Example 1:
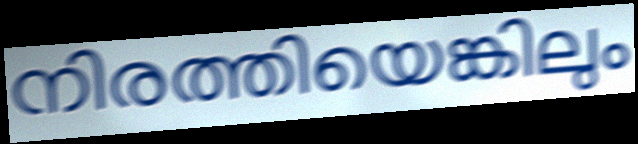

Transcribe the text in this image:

നിരത്തിയെങ്കിലും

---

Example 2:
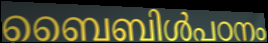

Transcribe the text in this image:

ബൈബിൾപഠനം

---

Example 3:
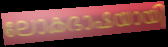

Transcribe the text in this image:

ലോകഭാഷയായി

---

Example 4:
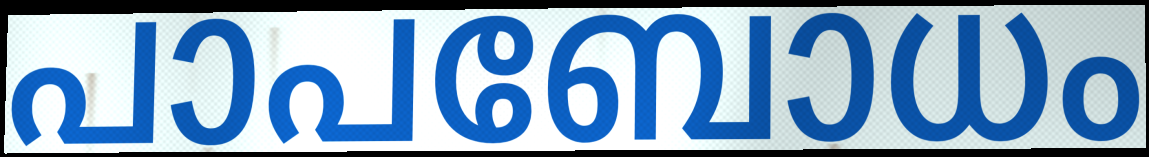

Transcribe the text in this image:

പാപബോധം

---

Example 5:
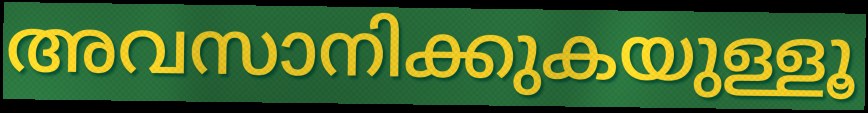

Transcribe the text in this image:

അവസാനിക്കുകയുള്ളൂ